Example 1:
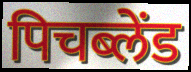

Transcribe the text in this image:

पिचब्लेंड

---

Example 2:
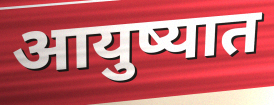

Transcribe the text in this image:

आयुष्यात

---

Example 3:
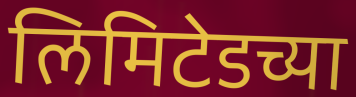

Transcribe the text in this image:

लिमिटेडच्या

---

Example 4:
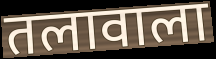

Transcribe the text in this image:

तलावाला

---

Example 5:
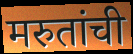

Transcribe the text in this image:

मरुतांची